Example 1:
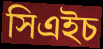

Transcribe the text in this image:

সিএইচ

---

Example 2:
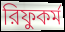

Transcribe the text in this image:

রিফুকর্ম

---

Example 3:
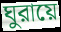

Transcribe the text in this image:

ঘুরায়ে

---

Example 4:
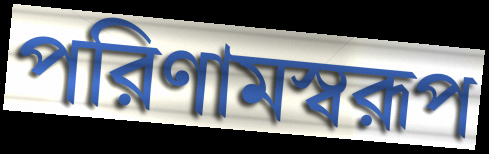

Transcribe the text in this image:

পরিণামস্বরূপ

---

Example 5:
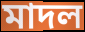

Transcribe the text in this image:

মাদল